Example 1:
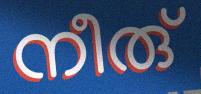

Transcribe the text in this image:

നീരു്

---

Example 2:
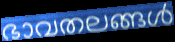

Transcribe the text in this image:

ഭാവതലങ്ങൾ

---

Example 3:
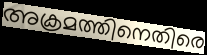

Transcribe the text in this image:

അക്രമത്തിനെതിരെ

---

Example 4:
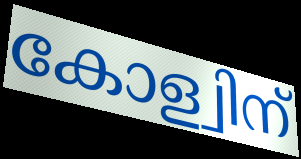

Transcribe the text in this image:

കോള്വിന്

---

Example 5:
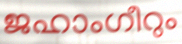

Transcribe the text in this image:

ജഹാംഗീറും